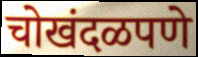
चोखंदळपणे